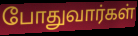
போதுவார்கள்